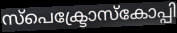
സ്പെക്ട്രോസ്കോപ്പി